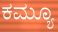
ಕಮ್ಯೂ